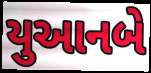
યુઆનબે